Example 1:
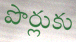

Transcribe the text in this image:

పొర్లుకు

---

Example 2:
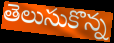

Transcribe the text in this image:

తెలుసుకొన్న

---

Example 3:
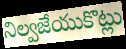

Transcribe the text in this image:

నిల్వజేయుకొట్లు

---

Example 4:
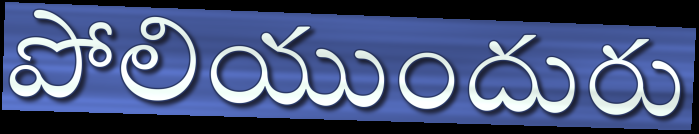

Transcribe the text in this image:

పోలియుందురు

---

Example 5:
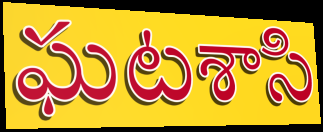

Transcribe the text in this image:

ఘటశాసి